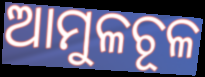
ଆମୁଳଚୂଳ